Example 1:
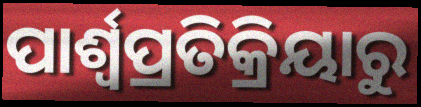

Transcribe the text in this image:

ପାର୍ଶ୍ୱପ୍ରତିକ୍ରିୟାରୁ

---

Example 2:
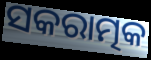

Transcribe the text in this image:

ସକରାତ୍ମକ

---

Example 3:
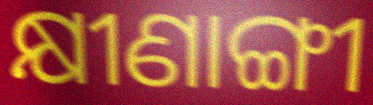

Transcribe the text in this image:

କ୍ଷୀଣାଙ୍ଗୀ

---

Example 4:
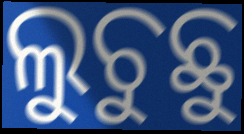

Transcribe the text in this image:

ଲୁଚୁଛୁ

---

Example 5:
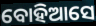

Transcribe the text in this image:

ବୋହିଆସେ